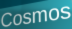
Cosmos